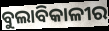
ବୁଲାବିକାଳୀର